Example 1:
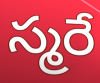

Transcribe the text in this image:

స్మరే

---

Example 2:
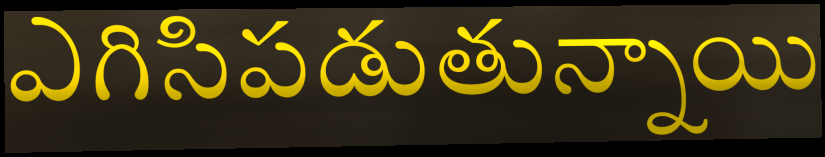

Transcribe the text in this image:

ఎగిసిపడుతున్నాయి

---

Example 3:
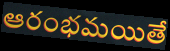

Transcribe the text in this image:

ఆరంభమయితే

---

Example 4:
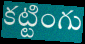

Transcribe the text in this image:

కట్టింగు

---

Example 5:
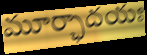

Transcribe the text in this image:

మూర్ఛాదయః